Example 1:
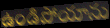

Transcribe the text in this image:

ఉండిపోయాను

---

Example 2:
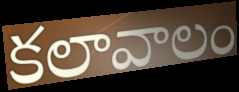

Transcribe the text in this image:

కలావాలం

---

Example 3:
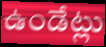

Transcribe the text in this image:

ఉండేట్లు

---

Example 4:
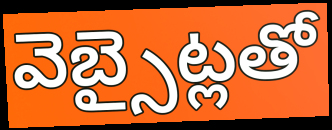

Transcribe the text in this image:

వెబ్సైట్లతో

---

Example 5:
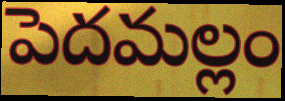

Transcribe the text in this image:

పెదమల్లం